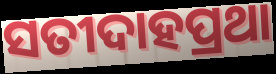
ସତୀଦାହପ୍ରଥା